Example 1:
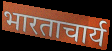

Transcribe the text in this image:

भारताचार्य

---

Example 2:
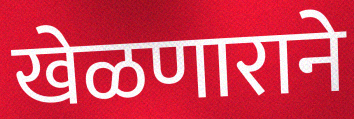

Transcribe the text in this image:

खेळणाराने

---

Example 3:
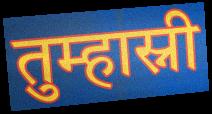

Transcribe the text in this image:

तुम्हास्नी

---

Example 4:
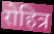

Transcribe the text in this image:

रोहित्र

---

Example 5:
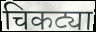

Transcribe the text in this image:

चिकट्या